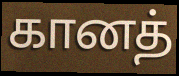
கானத்